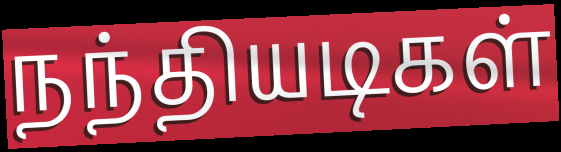
நந்தியடிகள்